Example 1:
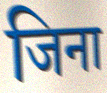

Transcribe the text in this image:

जिना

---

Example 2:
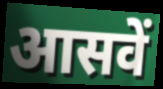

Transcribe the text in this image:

आसवें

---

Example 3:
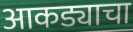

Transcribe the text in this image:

आकड्याचा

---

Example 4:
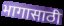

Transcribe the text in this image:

भागासाठी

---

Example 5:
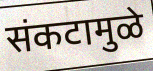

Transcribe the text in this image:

संकटामुळे